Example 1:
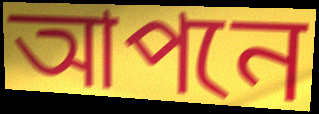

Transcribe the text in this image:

আপনে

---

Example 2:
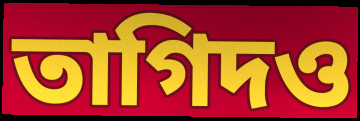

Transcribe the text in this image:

তাগিদও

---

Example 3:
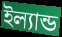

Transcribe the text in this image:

ইল্যান্ড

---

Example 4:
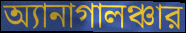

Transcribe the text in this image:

অ্যানাগালঞ্চার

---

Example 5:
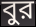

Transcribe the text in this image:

বুর